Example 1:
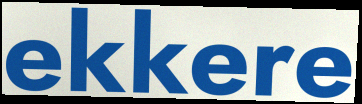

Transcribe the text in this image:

ekkere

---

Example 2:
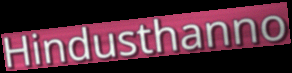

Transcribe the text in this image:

Hindusthanno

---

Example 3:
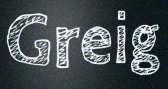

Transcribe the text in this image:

Greig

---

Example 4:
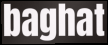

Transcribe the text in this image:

baghat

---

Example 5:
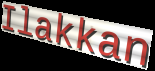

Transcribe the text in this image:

Ilakkan